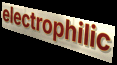
electrophilic